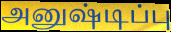
அனுஷ்டிப்பு